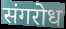
संगरोध